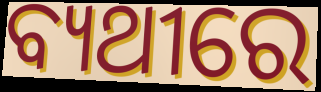
ବ୍ୟଥୀରେ